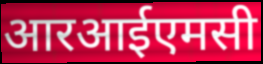
आरआईएमसी